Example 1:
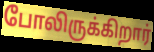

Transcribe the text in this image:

போலிருக்கிறார்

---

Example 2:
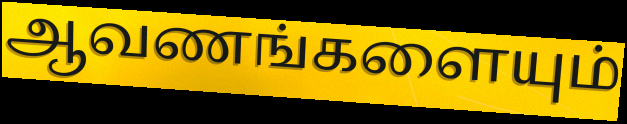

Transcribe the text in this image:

ஆவணங்களையும்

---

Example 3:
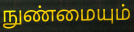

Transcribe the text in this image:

நுண்மையும்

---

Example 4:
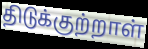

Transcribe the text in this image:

திடுக்குற்றாள்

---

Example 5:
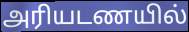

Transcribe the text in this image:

அரியடணயில்